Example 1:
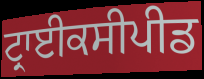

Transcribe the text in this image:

ਟ੍ਰਾਈਕਸੀਪੀਡ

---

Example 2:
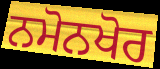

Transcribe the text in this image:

ਨਮੋਨਖੋਰ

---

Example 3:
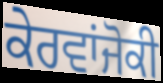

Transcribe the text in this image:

ਕੇਰਵਾਂਜੋਕੀ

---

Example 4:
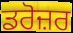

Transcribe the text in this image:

ਡਰੋਜ਼ਰ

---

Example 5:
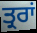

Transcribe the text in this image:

ਤ੍ਰਰਾਂ